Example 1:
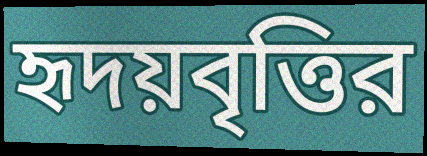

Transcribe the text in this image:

হৃদয়বৃত্তির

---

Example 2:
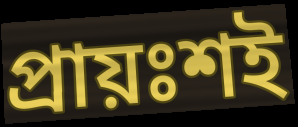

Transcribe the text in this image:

প্রায়ঃশই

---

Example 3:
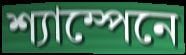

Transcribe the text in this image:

শ্যাম্পেনে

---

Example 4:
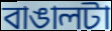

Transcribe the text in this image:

বাঙালটা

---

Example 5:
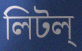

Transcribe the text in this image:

লিটল্